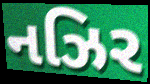
નઝિર